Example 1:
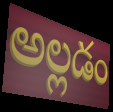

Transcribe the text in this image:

అల్లడం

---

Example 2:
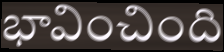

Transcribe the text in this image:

భావించింది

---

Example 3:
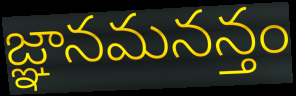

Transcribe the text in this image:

జ్ఞానమనన్తం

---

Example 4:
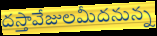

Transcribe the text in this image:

దస్తావేజులమీదనున్న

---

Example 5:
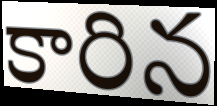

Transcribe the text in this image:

కారిన